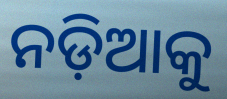
ନଡ଼ିଆକୁ